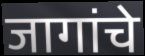
जागांचे